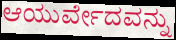
ಆಯುರ್ವೇದವನ್ನು